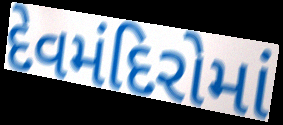
દેવમંદિરોમાં